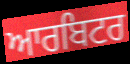
ਆਰਬਿਟਰ